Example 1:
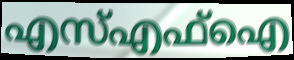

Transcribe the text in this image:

എസ്എഫ്ഐ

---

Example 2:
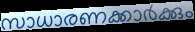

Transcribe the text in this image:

സാധാരണക്കാർക്കും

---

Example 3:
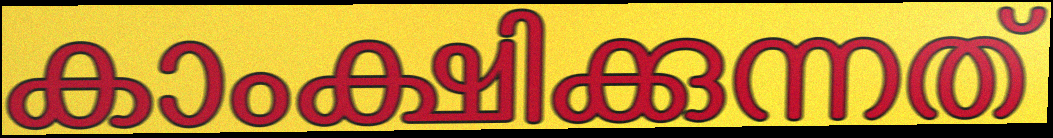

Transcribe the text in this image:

കാംക്ഷിക്കുന്നത്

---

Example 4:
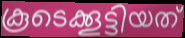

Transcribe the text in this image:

കൂടെക്കൂട്ടിയത്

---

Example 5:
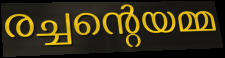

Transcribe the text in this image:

രച്ചന്റെയമ്മ